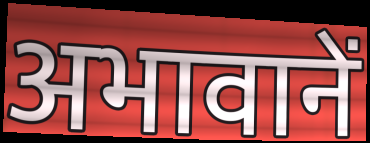
अभावानें